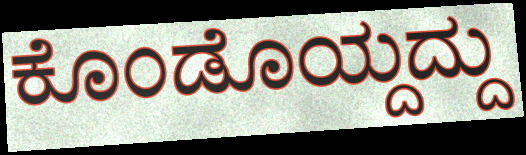
ಕೊಂಡೊಯ್ದದ್ದು